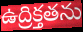
ఉద్రిక్తతను